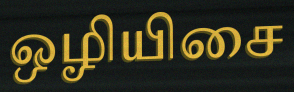
ஒழியிசை